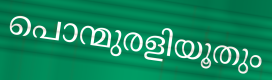
പൊന്മുരളിയൂതും